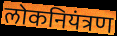
लोकनियंत्रण